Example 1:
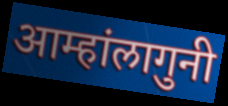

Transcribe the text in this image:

आम्हांलागुनी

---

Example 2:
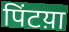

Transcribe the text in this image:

पिंटय़ा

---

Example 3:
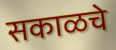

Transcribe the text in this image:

सकाळचे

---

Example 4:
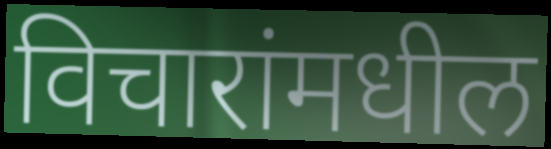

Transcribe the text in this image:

विचारांमधील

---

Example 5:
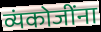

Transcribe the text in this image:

व्यंकोजींना